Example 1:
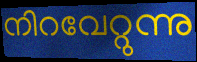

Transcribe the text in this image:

നിറവേറ്റുന്നു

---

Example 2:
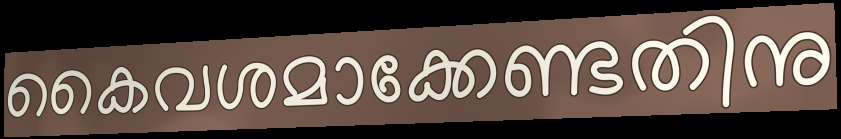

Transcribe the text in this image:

കൈവശമാക്കേണ്ടതിനു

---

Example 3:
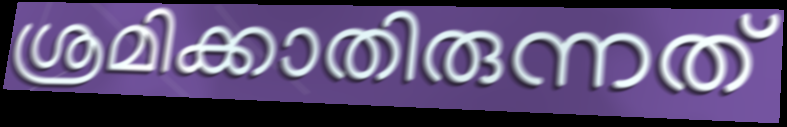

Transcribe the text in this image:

ശ്രമിക്കാതിരുന്നത്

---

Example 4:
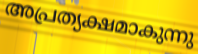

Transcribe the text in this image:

അപ്രത്യക്ഷമാകുന്നു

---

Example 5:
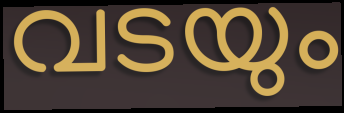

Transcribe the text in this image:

വടയും